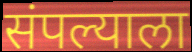
संपल्याला